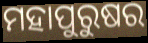
ମହାପୁରୁଷର